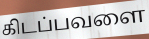
கிடப்பவளை